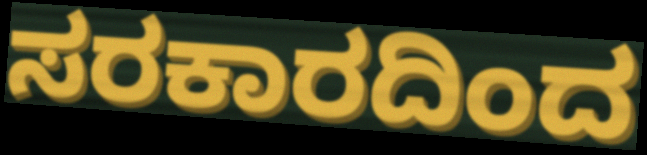
ಸರಕಾರದಿಂದ